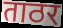
ताठर